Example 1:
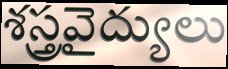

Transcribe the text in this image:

శస్త్రవైద్యులు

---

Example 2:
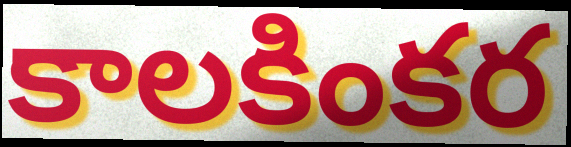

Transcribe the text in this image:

కాలకింకర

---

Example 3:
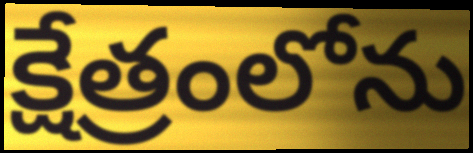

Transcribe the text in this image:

క్షేత్రంలోను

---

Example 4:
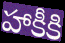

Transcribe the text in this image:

హాకీకి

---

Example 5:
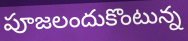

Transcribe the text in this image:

పూజలందుకొంటున్న